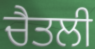
ਚੈਤਲੀ